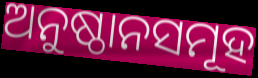
ଅନୁଷ୍ଠାନସମୂହ